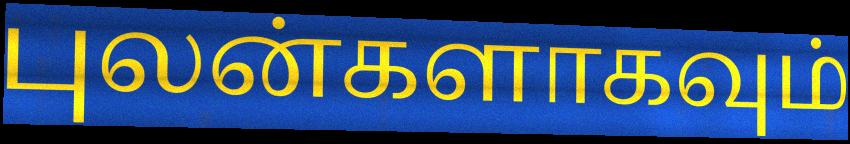
புலன்களாகவும்